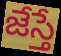
జేస్తే